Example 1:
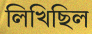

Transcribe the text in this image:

লিখিছিল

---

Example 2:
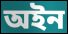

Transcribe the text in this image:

অইন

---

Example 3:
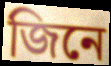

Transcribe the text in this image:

জিনে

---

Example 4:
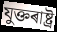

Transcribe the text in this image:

যুক্তৰাষ্ট্ৰ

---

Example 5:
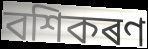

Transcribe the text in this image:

বশিকৰণ